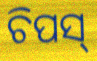
ଚିପସ୍